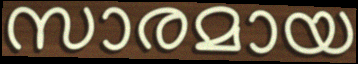
സാരമായ